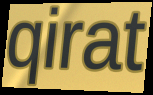
qirat